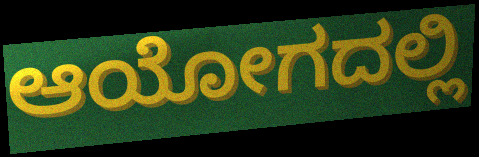
ಆಯೋಗದಲ್ಲಿ